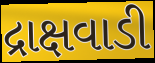
દ્રાક્ષવાડી